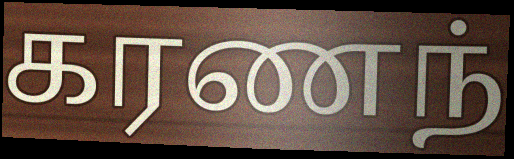
கரணந்